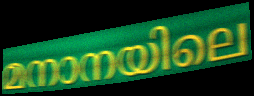
മനാനയിലെ